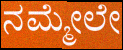
ನಮ್ಮೇಲೇ